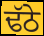
ਢੱਠੇ